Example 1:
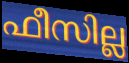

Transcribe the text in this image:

ഫീസില്ല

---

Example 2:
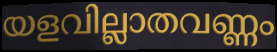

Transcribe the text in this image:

യളവില്ലാതവണ്ണം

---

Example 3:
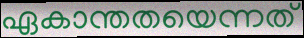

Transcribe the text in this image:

ഏകാന്തതയെന്നത്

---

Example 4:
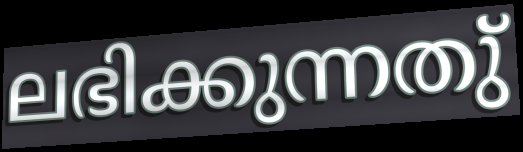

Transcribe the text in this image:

ലഭിക്കുന്നതു്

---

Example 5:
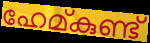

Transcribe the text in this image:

ഹേമ്കുണ്ട്